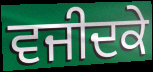
ਵਜੀਦਕੇ